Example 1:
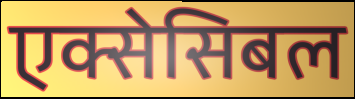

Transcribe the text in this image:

एक्सेसिबल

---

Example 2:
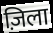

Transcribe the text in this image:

ज़िला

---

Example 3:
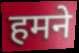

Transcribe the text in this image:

हमने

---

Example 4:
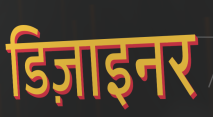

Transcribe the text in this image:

डिज़ाइनर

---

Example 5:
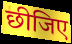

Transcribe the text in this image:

छीजिए